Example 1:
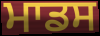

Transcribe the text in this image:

ਮਾਡਸ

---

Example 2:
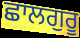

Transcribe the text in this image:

ਛਾਲਗੁਰੂ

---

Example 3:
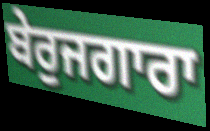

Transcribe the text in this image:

ਬੇਰੁਜਗਾਰਾ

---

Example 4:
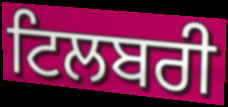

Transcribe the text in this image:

ਟਿਲਬਰੀ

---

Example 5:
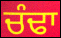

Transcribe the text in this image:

ਚੰਢਾ